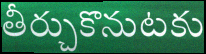
తీర్చుకొనుటకు